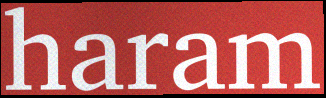
haram